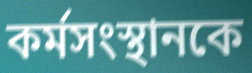
কর্মসংস্থানকে